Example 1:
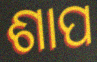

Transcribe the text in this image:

ଶାପ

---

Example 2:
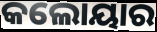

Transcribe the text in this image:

କଲୋୟାର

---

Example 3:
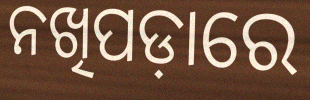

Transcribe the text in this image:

ନଖିପଡ଼ାରେ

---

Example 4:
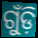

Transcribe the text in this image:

ଗୁଁଡ଼ି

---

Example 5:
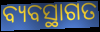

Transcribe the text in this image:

ବ୍ୟବସ୍ଥାଗତ